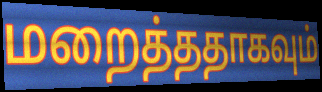
மறைத்ததாகவும்